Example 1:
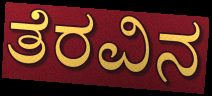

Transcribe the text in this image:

ತೆರವಿನ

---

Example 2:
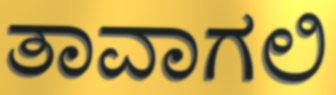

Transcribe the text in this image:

ತಾವಾಗಲಿ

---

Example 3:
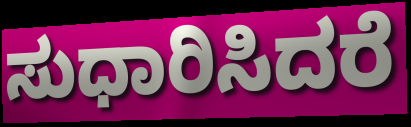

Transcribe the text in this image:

ಸುಧಾರಿಸಿದರೆ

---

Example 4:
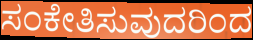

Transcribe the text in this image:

ಸಂಕೇತಿಸುವುದರಿಂದ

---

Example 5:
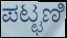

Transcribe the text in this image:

ಪಟ್ಟಣಿ